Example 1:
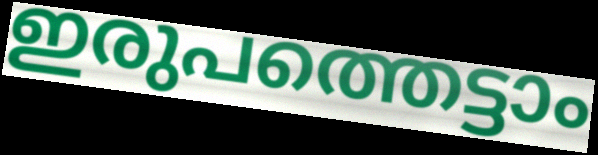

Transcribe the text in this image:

ഇരുപത്തെട്ടാം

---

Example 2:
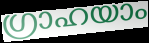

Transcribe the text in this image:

ഗ്രാഹയാം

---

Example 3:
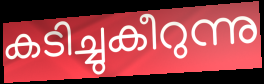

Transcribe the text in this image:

കടിച്ചുകീറുന്നു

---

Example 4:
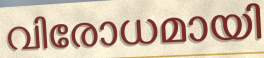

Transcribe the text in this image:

വിരോധമായി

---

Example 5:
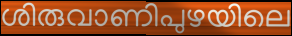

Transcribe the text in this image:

ശിരുവാണിപുഴയിലെ